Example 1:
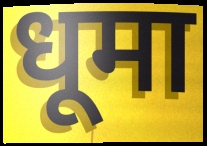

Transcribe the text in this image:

धूमा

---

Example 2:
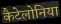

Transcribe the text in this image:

कैटेलोनिया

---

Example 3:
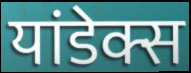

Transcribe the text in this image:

यांडेक्स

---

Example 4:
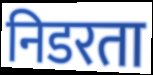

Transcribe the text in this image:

निडरता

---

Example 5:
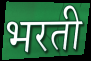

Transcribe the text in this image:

भरती